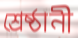
শ্রেষ্ঠানী